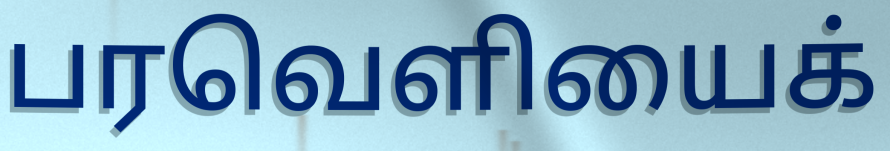
பரவெளியைக்